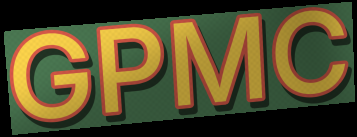
GPMC